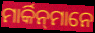
ମାର୍କିନ୍‌ମାନେ